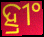
ହ୍ରୀଂ